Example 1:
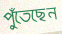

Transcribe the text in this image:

পুঁতেছেন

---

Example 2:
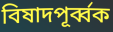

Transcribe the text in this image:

বিষাদপূর্ব্বক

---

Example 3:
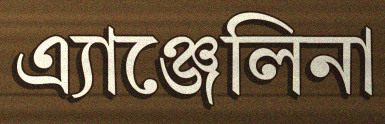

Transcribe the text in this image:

এ্যাঞ্জেলিনা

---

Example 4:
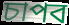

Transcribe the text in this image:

চাপব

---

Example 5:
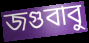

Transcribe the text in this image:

জগুবাবু